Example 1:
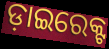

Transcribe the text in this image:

ଡ଼ାଇରେକ୍ଟ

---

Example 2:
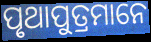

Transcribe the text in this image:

ପୃଥାପୁତ୍ରମାନେ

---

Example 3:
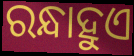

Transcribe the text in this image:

ରନ୍ଧାହୁଏ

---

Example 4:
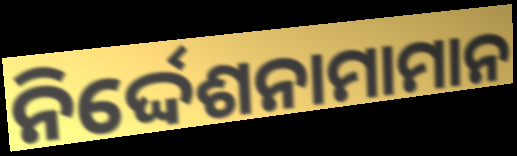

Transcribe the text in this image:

ନିର୍ଦ୍ଦେଶନାମାମାନ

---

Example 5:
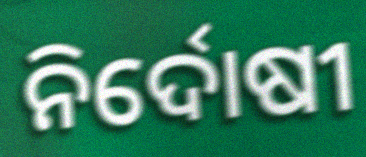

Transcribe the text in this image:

ନିର୍ଦୋଷୀ